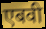
एबवी